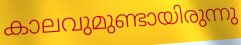
കാലവുമുണ്ടായിരുന്നു